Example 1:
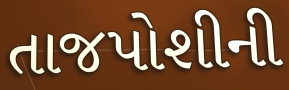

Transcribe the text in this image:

તાજપોશીની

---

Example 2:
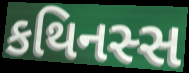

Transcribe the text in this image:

કથિનસ્સ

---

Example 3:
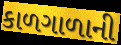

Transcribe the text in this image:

કાળગાળાની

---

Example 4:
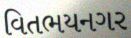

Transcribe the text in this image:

વિતભયનગર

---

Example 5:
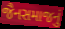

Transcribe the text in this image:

જૈનસમાજનું